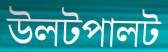
উলটপালট